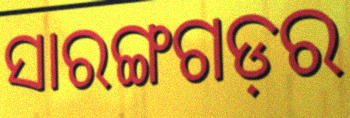
ସାରଙ୍ଗଗଡ଼ର